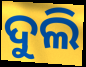
ଦୁଲି